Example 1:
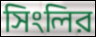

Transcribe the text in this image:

সিংলির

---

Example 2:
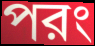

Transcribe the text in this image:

পরং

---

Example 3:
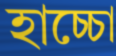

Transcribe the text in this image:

হাচ্চো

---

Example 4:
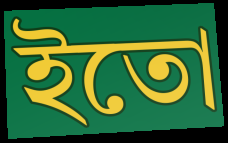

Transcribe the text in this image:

ইতো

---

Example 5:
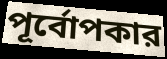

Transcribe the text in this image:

পূর্বোপকার